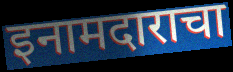
इनामदाराचा